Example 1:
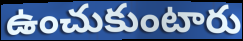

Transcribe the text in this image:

ఉంచుకుంటారు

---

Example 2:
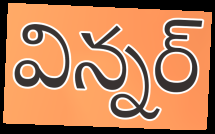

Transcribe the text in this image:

విన్నర్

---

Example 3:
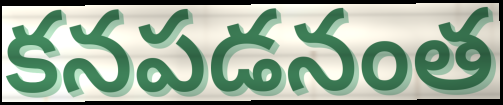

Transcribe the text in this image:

కనపడనంత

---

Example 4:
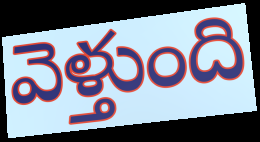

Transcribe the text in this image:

వెళ్తుంది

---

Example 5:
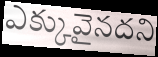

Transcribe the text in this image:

ఎక్కువైనదని